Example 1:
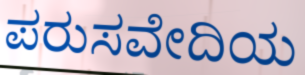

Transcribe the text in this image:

ಪರುಸವೇದಿಯ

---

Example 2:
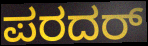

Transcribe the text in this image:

ಪರದರ್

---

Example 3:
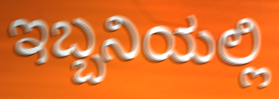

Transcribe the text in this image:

ಇಬ್ಬನಿಯಲ್ಲಿ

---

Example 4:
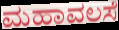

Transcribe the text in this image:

ಮಹಾವಲಸೆ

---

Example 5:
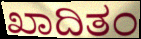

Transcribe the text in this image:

ಖಾದಿತಂ